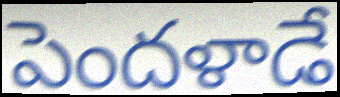
పెందళాడే